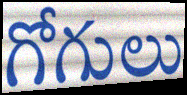
గోగులు